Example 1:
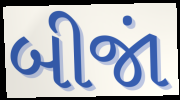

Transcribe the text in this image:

બીજાં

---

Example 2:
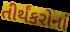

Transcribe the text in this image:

તીર્થંકરોનાં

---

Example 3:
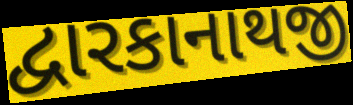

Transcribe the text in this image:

દ્વારકાનાથજી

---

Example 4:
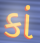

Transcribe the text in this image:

કાં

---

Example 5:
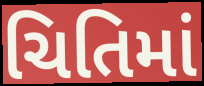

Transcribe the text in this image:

ચિતિમાં